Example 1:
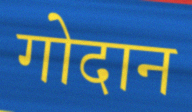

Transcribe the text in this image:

गोदान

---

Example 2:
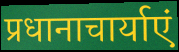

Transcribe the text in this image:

प्रधानाचार्याएं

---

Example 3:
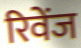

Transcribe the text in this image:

रिवेंज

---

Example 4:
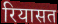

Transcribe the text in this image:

रियासत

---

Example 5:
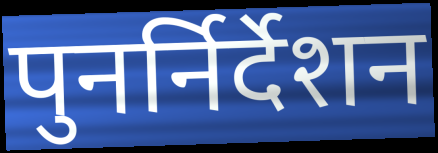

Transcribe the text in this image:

पुनर्निर्देशन